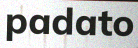
padato